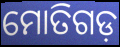
ମୋତିଗଡ଼